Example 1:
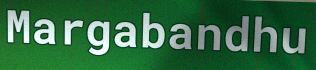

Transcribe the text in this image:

Margabandhu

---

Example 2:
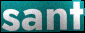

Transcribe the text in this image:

sant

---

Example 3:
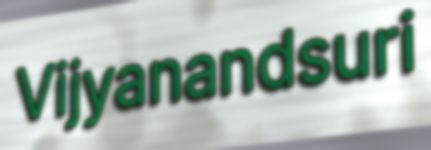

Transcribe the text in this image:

Vijyanandsuri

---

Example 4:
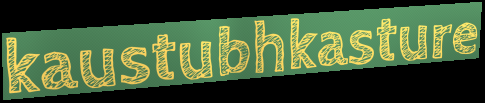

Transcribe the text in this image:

kaustubhkasture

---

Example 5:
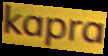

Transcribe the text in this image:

kapra